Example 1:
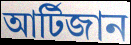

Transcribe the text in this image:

আর্টিজান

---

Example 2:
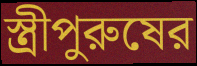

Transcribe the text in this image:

স্ত্রীপুরুষের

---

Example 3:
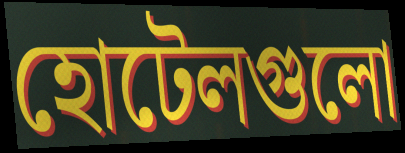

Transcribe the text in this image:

হোটেলগুলো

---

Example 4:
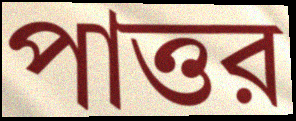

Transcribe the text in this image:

পাত্তর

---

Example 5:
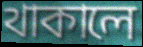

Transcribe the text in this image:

থাকালে